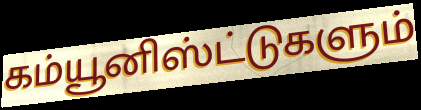
கம்யூனிஸ்ட்டுகளும்